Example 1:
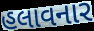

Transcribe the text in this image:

હલાવનાર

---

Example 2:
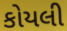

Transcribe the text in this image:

કોયલી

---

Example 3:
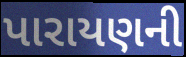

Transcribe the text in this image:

પારાયણની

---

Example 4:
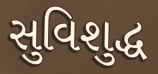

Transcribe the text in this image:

સુવિશુદ્ધ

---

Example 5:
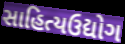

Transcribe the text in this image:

સાહિત્યઉદ્યોગ